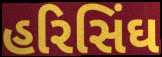
હરિસિંઘ